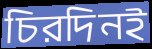
চিরদিনই